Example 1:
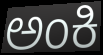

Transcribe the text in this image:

ಅಂಕಿ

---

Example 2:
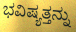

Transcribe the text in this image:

ಭವಿಷ್ಯತ್ತನ್ನು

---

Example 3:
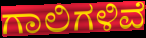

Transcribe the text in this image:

ಗಾಲಿಗಳಿವೆ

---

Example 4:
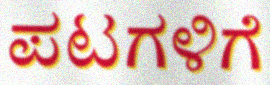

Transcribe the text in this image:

ಪಟಗಳಿಗೆ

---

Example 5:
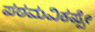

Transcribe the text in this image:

ಪಠಮವಿಕಪ್ಪೇ